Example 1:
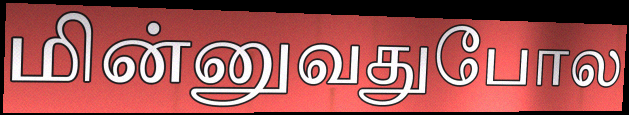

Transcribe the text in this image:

மின்னுவதுபோல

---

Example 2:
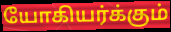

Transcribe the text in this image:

யோகியர்க்கும்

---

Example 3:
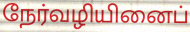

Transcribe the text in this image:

நேர்வழியினைப்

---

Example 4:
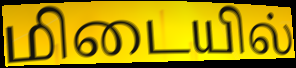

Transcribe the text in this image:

மிடையில்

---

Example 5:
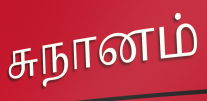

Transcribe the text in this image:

சுநானம்